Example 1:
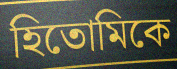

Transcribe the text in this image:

হিতোমিকে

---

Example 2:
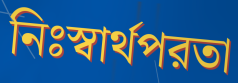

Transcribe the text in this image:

নিঃস্বার্থপরতা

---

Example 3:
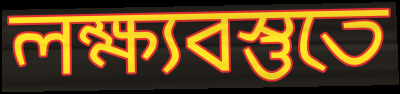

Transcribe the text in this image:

লক্ষ্যবস্তুতে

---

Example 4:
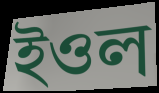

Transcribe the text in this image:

ইওল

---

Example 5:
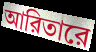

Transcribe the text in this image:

আরিতারে